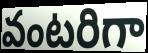
వంటరిగా